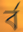
র্ব